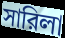
সারিলা